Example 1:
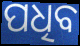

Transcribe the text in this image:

ପଧିବ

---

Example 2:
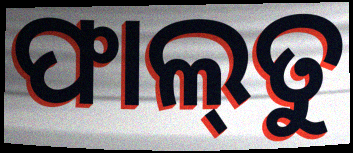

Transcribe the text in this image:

ଫାଲ୍‌ତୁ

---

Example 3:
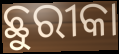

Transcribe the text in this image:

ଛୁରୀକା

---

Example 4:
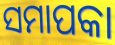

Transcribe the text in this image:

ସମାପକା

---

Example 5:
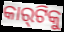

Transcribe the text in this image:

କାର୍‌ଟିକୁ